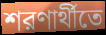
শরণার্থীতে